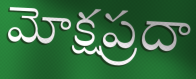
మోక్షప్రదా